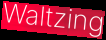
Waltzing